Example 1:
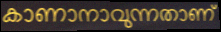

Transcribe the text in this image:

കാണാനാവുന്നതാണ്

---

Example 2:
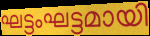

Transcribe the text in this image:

ഘട്ടംഘട്ടമായി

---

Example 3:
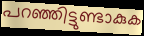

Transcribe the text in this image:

പറഞ്ഞിട്ടുണ്ടാകുക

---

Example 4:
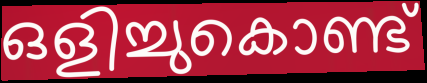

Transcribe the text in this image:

ഒളിച്ചുകൊണ്ട്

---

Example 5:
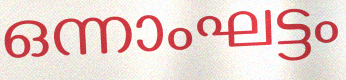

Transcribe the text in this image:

ഒന്നാംഘട്ടം